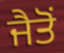
ਜੈਤੋਂ